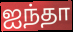
ஐந்தா